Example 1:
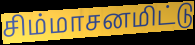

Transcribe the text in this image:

சிம்மாசனமிட்டு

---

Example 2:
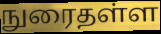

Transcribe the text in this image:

நுரைதள்ள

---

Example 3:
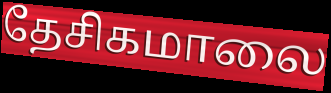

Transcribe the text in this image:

தேசிகமாலை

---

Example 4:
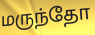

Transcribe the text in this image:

மருந்தோ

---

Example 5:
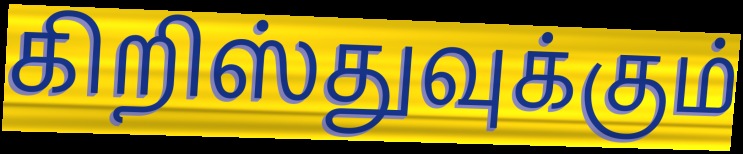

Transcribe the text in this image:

கிறிஸ்துவுக்கும்